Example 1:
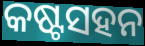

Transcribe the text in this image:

କଷ୍ଟସହନ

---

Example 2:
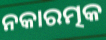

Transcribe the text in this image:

ନକାରତ୍ମକ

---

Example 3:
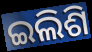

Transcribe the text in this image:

ଇଲିଶି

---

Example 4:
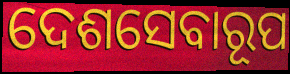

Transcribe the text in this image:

ଦେଶସେବାରୂପ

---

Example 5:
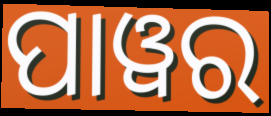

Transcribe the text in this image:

ପାୱର